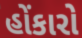
હોંકારો